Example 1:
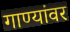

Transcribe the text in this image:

गाण्यांवर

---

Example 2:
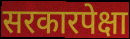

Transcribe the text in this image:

सरकारपेक्षा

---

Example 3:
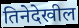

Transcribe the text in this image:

तिनेदेखील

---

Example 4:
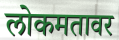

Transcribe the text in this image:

लोकमतावर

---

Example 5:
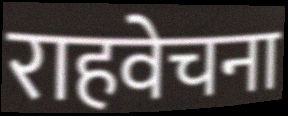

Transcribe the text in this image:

राहवेचना